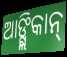
ଆଙ୍ଗ୍ଲିକାନ୍